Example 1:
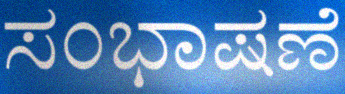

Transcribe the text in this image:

ಸಂಭಾಷಣೆ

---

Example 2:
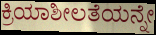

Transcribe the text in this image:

ಕ್ರಿಯಾಶೀಲತೆಯನ್ನೇ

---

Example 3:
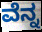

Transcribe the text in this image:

ವೆನ್ನ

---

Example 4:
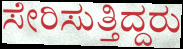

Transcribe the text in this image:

ಸೇರಿಸುತ್ತಿದ್ದರು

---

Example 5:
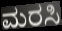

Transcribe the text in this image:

ಮರಸಿ